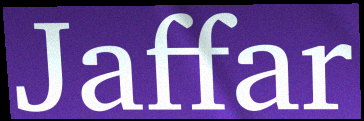
Jaffar